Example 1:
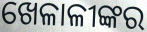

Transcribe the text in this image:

ଖେଳାଳୀଙ୍କର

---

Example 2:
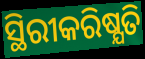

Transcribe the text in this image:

ସ୍ଥିରୀକରିଷ୍ଯତି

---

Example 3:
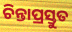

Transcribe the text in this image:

ଚିନ୍ତାପ୍ରସ୍ତୁତ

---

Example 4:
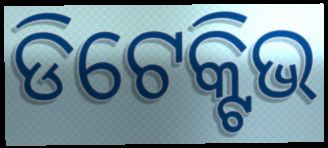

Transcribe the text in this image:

ଡିଟେକ୍ଟିଭ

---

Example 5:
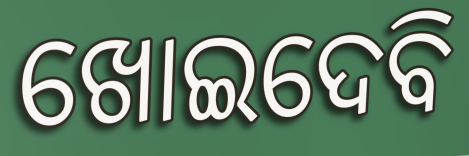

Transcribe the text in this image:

ଖୋଇଦେବି